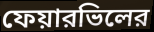
ফেয়ারভিলের